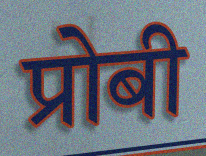
प्रोबी